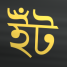
ইঁট